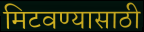
मिटवण्यासाठी